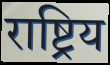
राष्ट्रिय